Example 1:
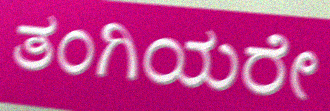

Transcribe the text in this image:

ತಂಗಿಯರೇ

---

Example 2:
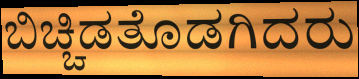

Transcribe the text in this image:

ಬಿಚ್ಚಿಡತೊಡಗಿದರು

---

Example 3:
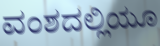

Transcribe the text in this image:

ವಂಶದಲ್ಲಿಯೂ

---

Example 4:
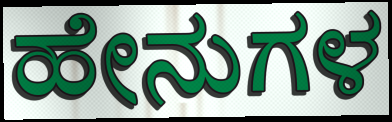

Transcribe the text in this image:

ಹೇನುಗಳ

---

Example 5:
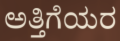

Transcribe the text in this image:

ಅತ್ತಿಗೆಯರ